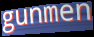
gunmen